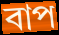
বাপ